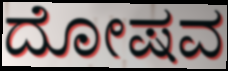
ದೋಷವ